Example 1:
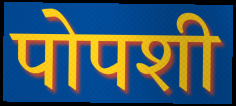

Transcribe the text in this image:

पोपशी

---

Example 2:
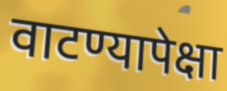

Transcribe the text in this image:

वाटण्यापेक्षा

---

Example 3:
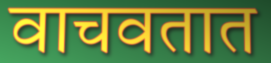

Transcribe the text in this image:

वाचवतात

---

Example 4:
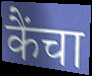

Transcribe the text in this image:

कैंचा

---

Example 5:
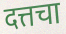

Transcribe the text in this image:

दत्तचा